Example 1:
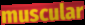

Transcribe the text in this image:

muscular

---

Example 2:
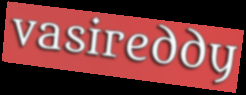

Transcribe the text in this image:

vasireddy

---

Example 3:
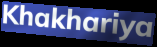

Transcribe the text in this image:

Khakhariya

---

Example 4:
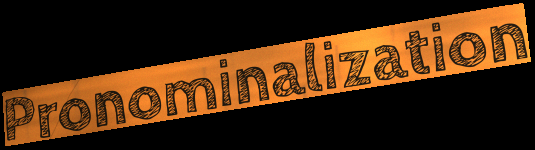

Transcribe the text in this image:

Pronominalization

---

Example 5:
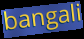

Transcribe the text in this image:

bangali